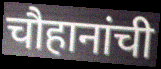
चौहानांची